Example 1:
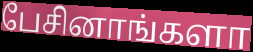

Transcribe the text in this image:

பேசினாங்களா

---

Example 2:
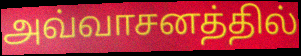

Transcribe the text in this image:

அவ்வாசனத்தில்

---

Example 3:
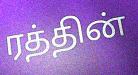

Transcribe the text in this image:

ரத்தின்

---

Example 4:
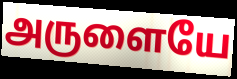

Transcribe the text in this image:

அருளையே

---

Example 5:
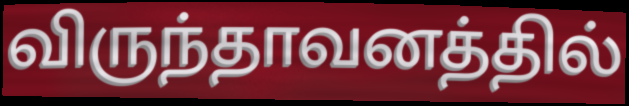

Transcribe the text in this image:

விருந்தாவனத்தில்